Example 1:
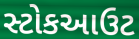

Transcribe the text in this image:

સ્ટોકઆઉટ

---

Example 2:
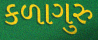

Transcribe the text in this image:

કળાગુરુ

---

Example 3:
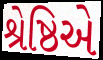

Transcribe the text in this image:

શ્રેષ્ઠિએ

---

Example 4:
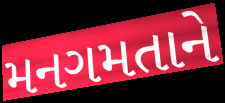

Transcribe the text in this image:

મનગમતાને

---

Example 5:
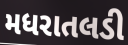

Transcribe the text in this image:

મધરાતલડી